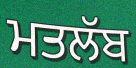
ਮਤਲੱਬ